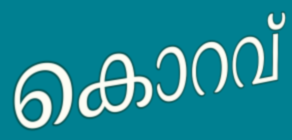
കൊറവ്